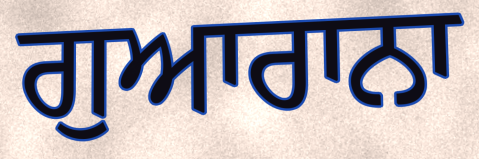
ਗੁਆਰਾਨਾ